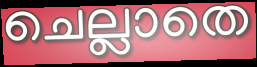
ചെല്ലാതെ